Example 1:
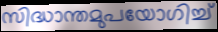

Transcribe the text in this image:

സിദ്ധാന്തമുപയോഗിച്ച്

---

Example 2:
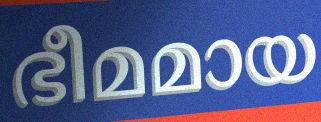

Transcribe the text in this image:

ഭീമമായ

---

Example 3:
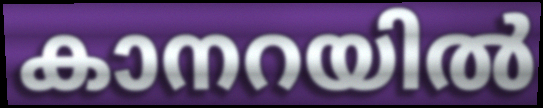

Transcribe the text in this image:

കാനറയിൽ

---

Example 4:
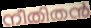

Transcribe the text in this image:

നീതിതൻ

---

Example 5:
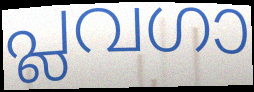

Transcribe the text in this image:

പ്ലവഗാ